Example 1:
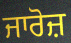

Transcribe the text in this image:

ਜਾਰੋਜ਼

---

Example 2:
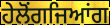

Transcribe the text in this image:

ਹੇਲੋਂਗਜਿਆਂਗ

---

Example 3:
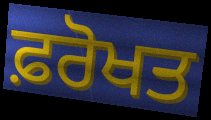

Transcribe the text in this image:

ਫ਼ਰੋਖਤ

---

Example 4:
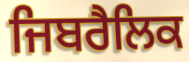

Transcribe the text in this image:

ਜਿਬਰੈਲਿਕ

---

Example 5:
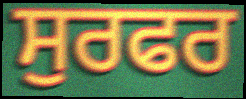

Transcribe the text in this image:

ਸੁਰਫਰ